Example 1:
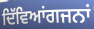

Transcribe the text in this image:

ਦਿੱਵਿਆਂਗਜਨਾਂ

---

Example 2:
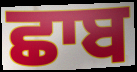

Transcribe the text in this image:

ਛਾਬ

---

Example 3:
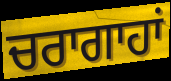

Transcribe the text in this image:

ਚਰਾਗਾਹਾਂ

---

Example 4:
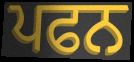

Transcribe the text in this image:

ਪਫਨ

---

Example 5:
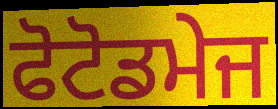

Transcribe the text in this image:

ਫੋਟੋਡਮੇਜ